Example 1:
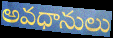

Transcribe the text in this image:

అవధానులు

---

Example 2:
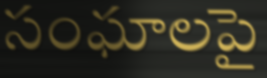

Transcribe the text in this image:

సంఘాలపై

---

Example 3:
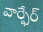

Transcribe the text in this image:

వార్ఫేర్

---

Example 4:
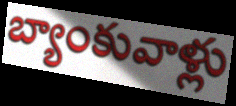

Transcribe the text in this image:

బ్యాంకువాళ్లు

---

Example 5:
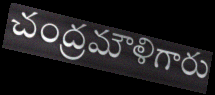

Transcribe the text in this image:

చంద్రమౌళిగారు